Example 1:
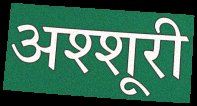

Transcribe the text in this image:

अश्‍शूरी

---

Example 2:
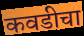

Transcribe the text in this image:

कवडीचा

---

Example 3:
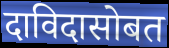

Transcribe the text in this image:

दाविदासोबत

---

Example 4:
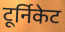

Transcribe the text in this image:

टूर्निकेट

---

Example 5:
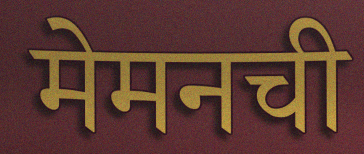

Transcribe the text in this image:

मेमनची